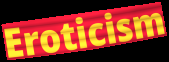
Eroticism